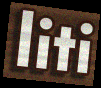
liti